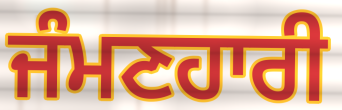
ਜੰਮਣਹਾਰੀ